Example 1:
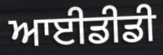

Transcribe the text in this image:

ਆਈਡੀਡੀ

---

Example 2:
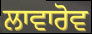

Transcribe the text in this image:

ਲਾਵਾਰੋਵ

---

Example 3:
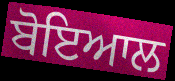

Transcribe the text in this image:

ਬੋਇਆਲ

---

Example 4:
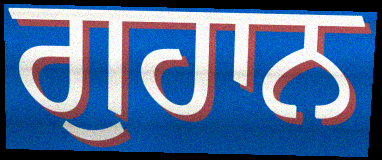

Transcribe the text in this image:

ਗੁਹਾਨ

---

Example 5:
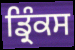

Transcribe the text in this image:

ਡ੍ਰਿੰਕਸ